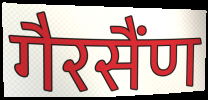
गैरसैंण